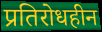
प्रतिरोधहीन